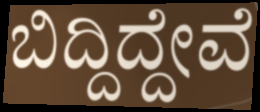
ಬಿದ್ದಿದ್ದೇವೆ